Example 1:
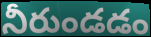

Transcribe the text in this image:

నీరుండడం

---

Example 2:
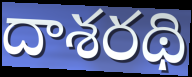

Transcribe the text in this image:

దాశరథి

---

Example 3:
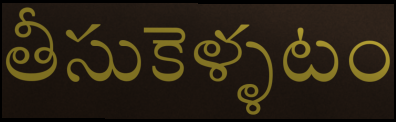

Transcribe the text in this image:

తీసుకెళ్ళటం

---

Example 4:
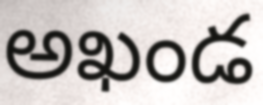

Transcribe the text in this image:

అఖండ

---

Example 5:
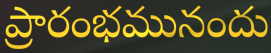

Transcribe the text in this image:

ప్రారంభమునందు